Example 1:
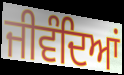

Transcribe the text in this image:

ਜੀਵੰਦਿਆਂ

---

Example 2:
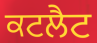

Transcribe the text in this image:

ਕਟਲੈਟ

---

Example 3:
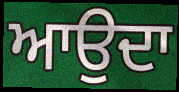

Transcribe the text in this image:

ਆਉਦਾ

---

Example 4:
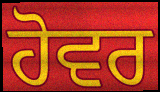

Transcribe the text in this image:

ਹੋਵਰ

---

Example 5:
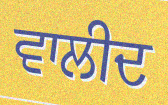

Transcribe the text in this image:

ਵਾਲੀਦ